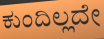
ಕುಂದಿಲ್ಲದೇ